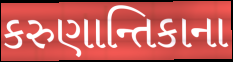
કરુણાન્તિકાના